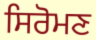
ਸਿਰੋਮਣ